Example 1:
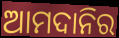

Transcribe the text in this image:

ଆମଦାନିର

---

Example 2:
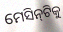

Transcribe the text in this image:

ମେସିନ୍‍ଟିକୁ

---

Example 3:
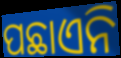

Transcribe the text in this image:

ପଛାଏନି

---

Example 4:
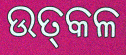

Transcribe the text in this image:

ଉତ୍‌କଳ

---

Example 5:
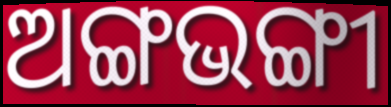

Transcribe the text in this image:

ଅଙ୍ଗଭଙ୍ଗୀ